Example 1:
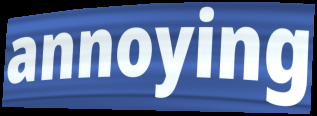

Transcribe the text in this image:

annoying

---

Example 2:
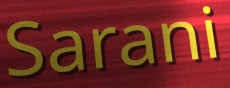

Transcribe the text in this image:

Sarani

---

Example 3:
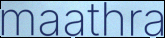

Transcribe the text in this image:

maathra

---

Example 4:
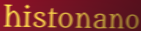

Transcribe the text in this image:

histonano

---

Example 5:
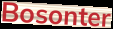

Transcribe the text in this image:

Bosonter